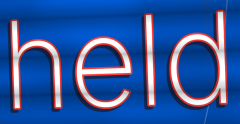
held